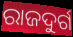
ରାଜଦୁର୍ଗ